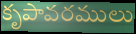
కృపావరములు